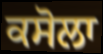
ਕਸੋਲਾ